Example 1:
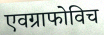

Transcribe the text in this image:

एवग्राफोविच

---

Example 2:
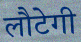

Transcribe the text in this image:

लौटेगी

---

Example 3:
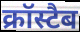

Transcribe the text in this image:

क्रॉस्टैब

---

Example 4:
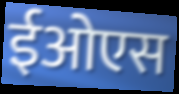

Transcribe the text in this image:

ईओएस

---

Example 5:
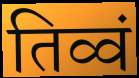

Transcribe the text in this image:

तिव्वं